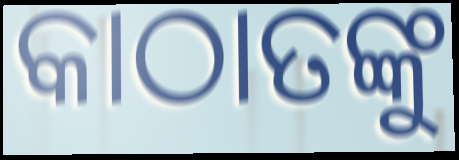
କାଠାତଙ୍କୁ